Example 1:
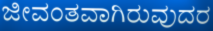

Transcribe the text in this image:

ಜೀವಂತವಾಗಿರುವುದರ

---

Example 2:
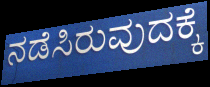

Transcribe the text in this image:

ನಡೆಸಿರುವುದಕ್ಕೆ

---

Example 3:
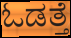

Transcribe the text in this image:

ಓಡತ್ತೆ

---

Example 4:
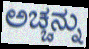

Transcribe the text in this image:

ಅಚ್ಚನ್ನು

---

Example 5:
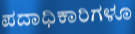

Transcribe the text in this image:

ಪದಾಧಿಕಾರಿಗಳೂ